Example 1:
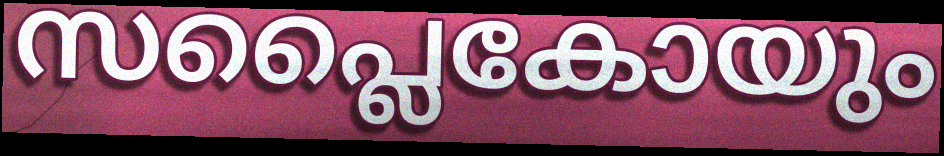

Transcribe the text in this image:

സപ്ലൈകോയും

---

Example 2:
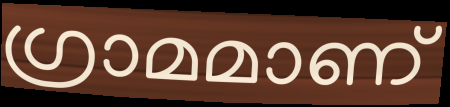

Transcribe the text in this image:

ഗ്രാമമാണ്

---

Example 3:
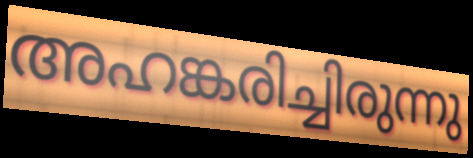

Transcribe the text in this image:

അഹങ്കരിച്ചിരുന്നു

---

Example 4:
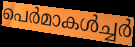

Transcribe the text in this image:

പെർമാകൾച്ചർ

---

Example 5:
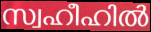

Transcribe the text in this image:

സ്വഹീഹിൽ